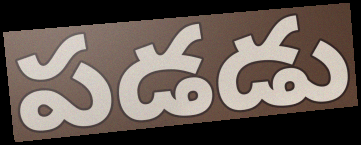
పడడు